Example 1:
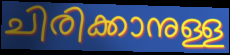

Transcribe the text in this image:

ചിരിക്കാനുള്ള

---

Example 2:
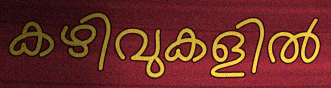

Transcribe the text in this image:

കഴിവുകളിൽ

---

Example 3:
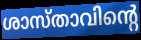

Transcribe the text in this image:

ശാസ്താവിന്റെ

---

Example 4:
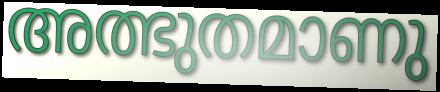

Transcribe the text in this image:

അത്ഭുതമാണു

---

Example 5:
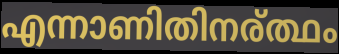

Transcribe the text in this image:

എന്നാണിതിനര്ത്ഥം